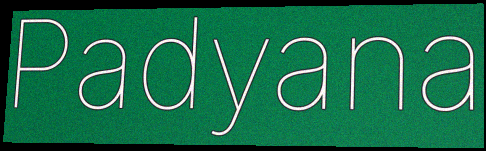
Padyana